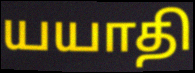
யயாதி